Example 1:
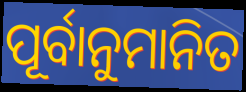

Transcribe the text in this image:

ପୂର୍ବାନୁମାନିତ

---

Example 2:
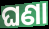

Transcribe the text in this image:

ଘଣା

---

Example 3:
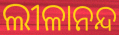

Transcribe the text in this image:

ଲୀଳାନନ୍ଦ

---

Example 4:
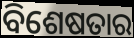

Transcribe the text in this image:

ବିଶେଷତାର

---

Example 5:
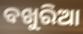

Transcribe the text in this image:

ବଖୁରିଆ